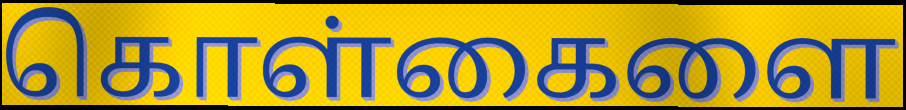
கொள்கைளை